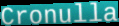
Cronulla